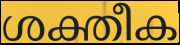
ശക്തീക